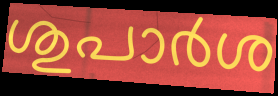
ശുപാർശ